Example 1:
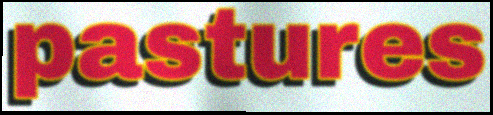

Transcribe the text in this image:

pastures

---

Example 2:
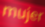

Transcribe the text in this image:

mujer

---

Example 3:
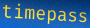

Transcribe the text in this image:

timepass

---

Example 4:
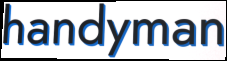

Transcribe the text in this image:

handyman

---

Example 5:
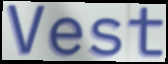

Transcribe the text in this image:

Vest